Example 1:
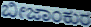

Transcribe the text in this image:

ಬೀಜಾಂಕುರ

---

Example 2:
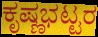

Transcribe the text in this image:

ಕೃಷ್ಣಭಟ್ಟರ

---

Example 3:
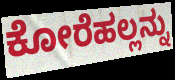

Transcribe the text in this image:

ಕೋರೆಹಲ್ಲನ್ನು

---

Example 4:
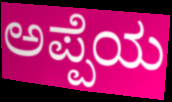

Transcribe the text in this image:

ಅಪ್ಪೆಯ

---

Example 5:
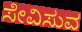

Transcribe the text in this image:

ಸೇವಿಸುವ